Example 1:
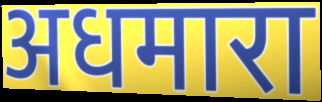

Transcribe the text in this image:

अधमारा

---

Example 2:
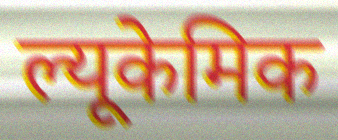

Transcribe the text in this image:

ल्यूकेमिक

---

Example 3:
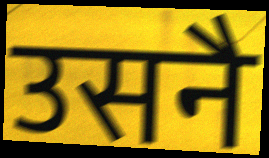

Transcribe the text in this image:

उसनै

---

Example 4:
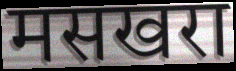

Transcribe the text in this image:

मसखरा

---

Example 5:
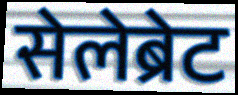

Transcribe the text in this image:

सेलेब्रेट